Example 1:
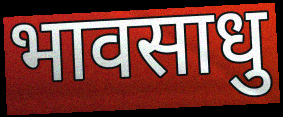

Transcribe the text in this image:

भावसाधु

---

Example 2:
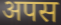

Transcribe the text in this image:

अपस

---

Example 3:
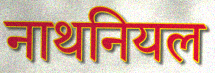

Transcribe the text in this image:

नाथनियल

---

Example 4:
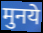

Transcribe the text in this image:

मुनये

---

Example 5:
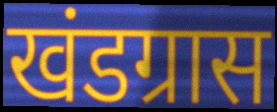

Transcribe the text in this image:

खंडग्रास